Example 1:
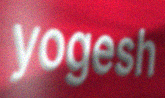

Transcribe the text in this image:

yogesh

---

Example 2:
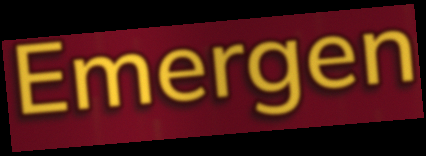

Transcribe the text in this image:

Emergen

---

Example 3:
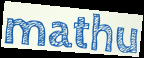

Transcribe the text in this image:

mathu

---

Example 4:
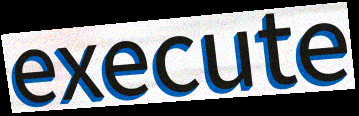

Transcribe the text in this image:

execute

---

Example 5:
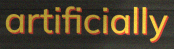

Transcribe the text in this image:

artificially